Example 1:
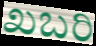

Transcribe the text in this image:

ಖಬರಿ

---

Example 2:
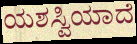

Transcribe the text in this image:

ಯಶಸ್ವಿಯಾದೆ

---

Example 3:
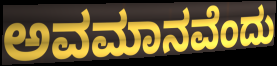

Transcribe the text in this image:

ಅವಮಾನವೆಂದು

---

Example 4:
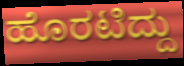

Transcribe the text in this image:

ಹೊರಟಿದ್ದು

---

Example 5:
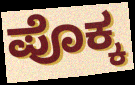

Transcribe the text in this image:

ಪೊಕ್ಕ